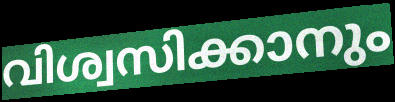
വിശ്വസിക്കാനും